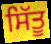
ਸਿੱਤੂ